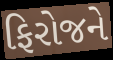
ફિરોજને